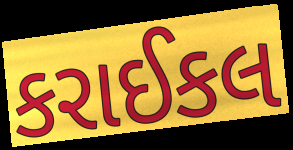
કરાઈકલ